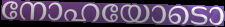
നോഹയോടൊ